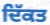
ਦਿੱਕਤ